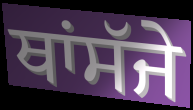
ਥਾਂਸੱਜੇ